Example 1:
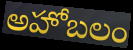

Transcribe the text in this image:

అహోబలం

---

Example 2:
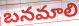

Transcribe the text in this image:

బనమాలి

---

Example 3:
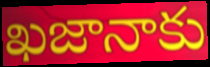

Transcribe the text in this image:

ఖజానాకు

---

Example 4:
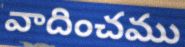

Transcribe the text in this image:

వాదించము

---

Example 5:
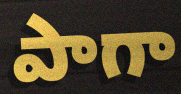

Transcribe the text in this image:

పాగా